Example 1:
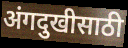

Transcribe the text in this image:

अंगदुखीसाठी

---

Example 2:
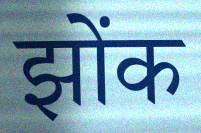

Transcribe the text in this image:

झोंक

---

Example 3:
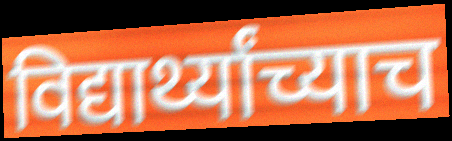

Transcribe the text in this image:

विद्यार्थ्यांच्याच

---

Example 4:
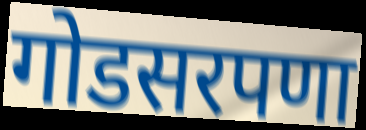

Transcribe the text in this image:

गोडसरपणा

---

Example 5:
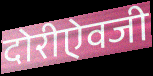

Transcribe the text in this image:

दोरीऐवजी